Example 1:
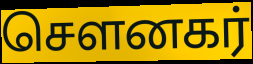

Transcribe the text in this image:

சௌனகர்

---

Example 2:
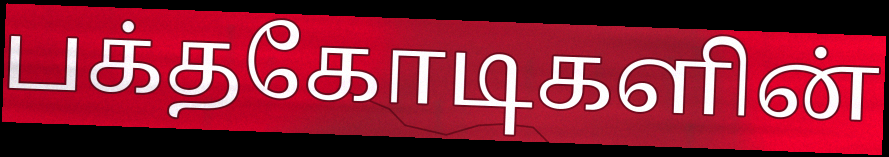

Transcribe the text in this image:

பக்தகோடிகளின்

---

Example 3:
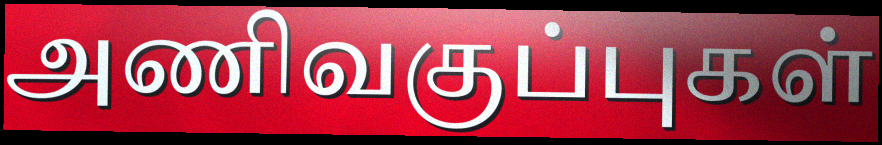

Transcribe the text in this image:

அணிவகுப்புகள்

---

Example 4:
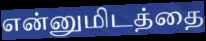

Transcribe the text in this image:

என்னுமிடத்தை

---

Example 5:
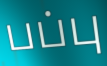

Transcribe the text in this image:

பப்பு